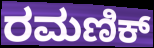
ರಮಣಿಕ್